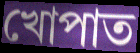
খোপাত